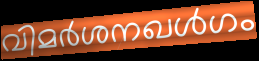
വിമർശനഖൾഗം